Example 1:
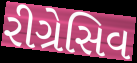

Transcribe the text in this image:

રીગ્રેસિવ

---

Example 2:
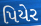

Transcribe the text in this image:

પિયેર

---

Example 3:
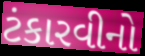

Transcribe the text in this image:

ટંકારવીનો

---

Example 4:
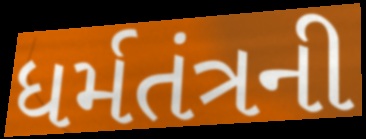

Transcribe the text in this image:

ધર્મતંત્રની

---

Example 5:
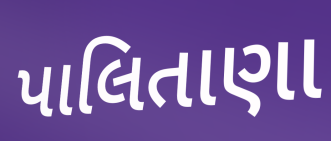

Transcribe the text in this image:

પાલિતાણા